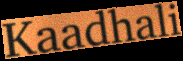
Kaadhali